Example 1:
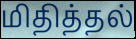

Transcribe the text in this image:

மிதித்தல்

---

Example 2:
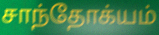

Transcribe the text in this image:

சாந்தோக்யம்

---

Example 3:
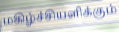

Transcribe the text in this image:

மகிழ்ச்சியளிக்கும்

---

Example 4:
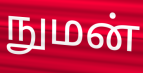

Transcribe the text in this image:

நுமன்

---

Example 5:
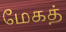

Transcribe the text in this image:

மேகத்